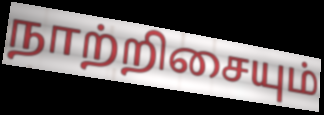
நாற்றிசையும்